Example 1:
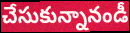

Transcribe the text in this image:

చేసుకున్నానండీ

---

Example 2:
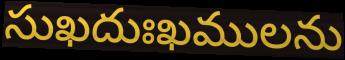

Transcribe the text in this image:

సుఖదుఃఖములను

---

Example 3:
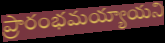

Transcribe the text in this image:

ప్రారంభమయ్యాయని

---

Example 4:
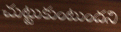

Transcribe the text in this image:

చుట్టుకుంటుందని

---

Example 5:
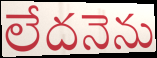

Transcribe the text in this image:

లేదనెను